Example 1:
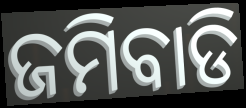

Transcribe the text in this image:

ଜମିବାଡି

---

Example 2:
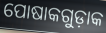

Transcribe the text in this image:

ପୋଷାକଗୁଡ଼ାକ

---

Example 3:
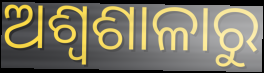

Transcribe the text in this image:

ଅଶ୍ୱଶାଳାରୁ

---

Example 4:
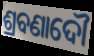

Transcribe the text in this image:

ଶ୍ରବଣାଦୌ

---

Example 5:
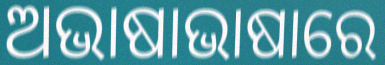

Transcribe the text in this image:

ଅଭାଷାଭାଷାରେ